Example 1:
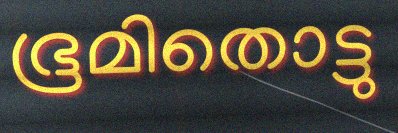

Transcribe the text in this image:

ഭൂമിതൊട്ടു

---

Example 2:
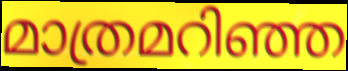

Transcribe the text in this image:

മാത്രമറിഞ്ഞ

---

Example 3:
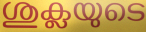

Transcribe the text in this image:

ശുക്ലയുടെ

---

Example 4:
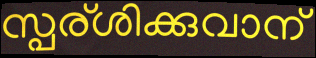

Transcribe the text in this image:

സ്പര്ശിക്കുവാന്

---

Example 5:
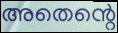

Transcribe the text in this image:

അതെന്റെ